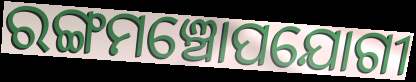
ରଙ୍ଗମଞ୍ଚୋପଯୋଗୀ